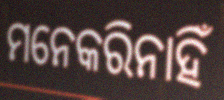
ମନେକରିନାହିଁ